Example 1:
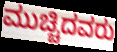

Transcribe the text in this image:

ಮುಚ್ಚಿದವರು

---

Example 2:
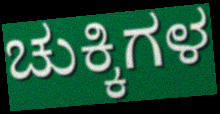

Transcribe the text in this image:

ಚುಕ್ಕಿಗಳ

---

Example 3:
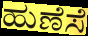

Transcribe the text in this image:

ಹುಣೆಸೆ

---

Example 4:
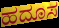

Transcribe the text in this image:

ಹದೂಸ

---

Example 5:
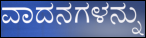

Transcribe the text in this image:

ವಾದನಗಳನ್ನು